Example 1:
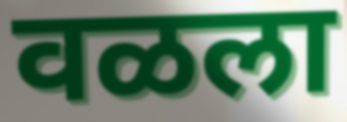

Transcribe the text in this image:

वळला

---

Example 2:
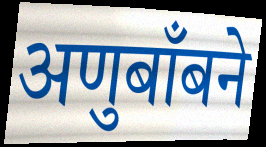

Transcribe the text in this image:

अणुबाँबने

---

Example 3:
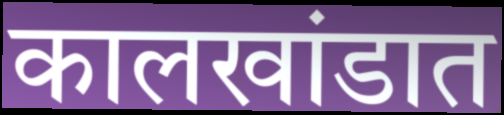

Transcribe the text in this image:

कालखांडात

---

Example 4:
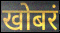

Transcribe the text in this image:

खोबरं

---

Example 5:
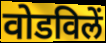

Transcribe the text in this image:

वोडविलें